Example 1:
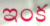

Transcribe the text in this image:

ఇంక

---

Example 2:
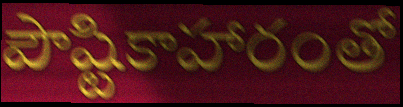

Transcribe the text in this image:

పౌష్టికాహారంతో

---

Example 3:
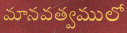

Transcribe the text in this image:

మానవత్వములో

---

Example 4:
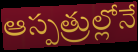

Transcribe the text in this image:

ఆస్పత్రుల్లోనే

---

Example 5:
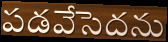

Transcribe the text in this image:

పడవేసెదను